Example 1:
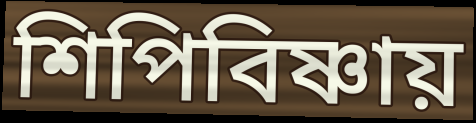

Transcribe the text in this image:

শিপিবিষ্ণায়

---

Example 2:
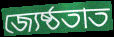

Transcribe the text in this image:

জ্যেষ্ঠতাত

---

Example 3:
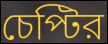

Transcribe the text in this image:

চেপ্টির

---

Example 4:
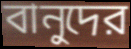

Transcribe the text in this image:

বানুদের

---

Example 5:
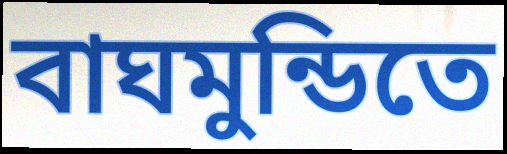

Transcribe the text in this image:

বাঘমুন্ডিতে